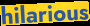
hilarious